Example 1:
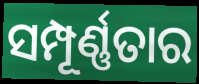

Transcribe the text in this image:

ସମ୍ପୂର୍ଣ୍ଣତାର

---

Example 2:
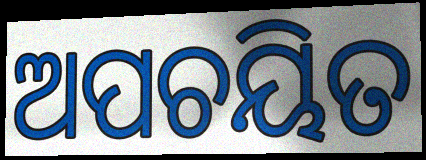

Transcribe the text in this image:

ଅପଚୟିତ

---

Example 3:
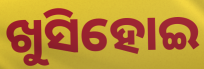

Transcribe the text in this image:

ଖୁସିହୋଇ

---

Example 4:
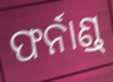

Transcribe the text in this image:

ଫର୍ନାଣ୍ଡ୍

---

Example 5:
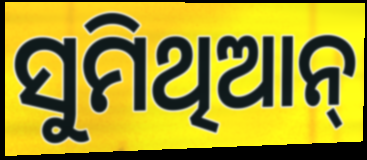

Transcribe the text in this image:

ସୁମିଥିଆନ୍